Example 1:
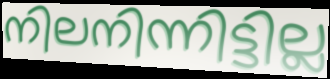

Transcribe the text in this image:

നിലനിന്നിട്ടില്ല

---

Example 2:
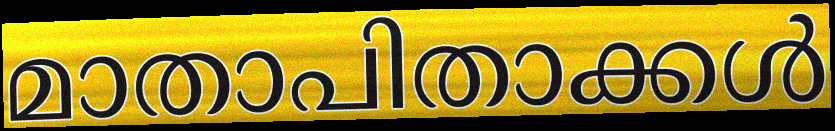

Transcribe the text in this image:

മാതാപിതാക്കൾ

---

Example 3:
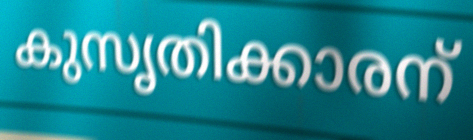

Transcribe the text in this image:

കുസൃതിക്കാരന്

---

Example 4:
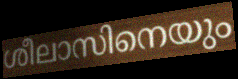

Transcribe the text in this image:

ശീലാസിനെയും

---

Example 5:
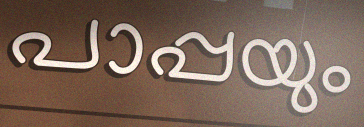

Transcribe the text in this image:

പാപ്പയും